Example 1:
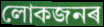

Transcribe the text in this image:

লোকজনৰ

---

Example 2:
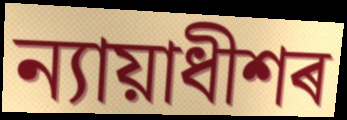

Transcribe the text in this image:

ন্যায়াধীশৰ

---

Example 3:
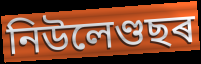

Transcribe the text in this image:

নিউলেণ্ডছৰ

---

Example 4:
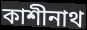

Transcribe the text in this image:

কাশীনাথ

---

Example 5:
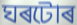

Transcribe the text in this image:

ঘৰটোৰ